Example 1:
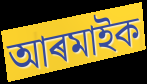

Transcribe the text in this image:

আৰমাইক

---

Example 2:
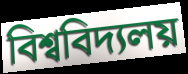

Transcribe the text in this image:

বিশ্ববিদ্যলয়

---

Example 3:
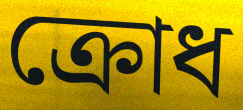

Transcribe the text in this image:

ক্ৰোধ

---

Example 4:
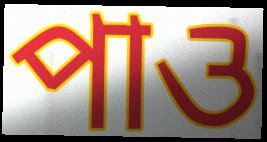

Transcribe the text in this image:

পাও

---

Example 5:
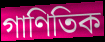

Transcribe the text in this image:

গাণিতিক